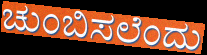
ಚುಂಬಿಸಲೆಂದು